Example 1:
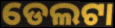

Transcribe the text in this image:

ଡେଲଟା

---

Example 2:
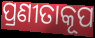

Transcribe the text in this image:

ପ୍ରଣୀତାକୂପ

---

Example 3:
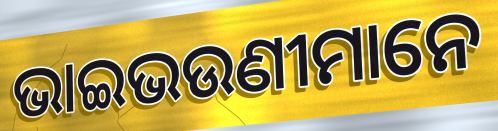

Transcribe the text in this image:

ଭାଇଭଉଣୀମାନେ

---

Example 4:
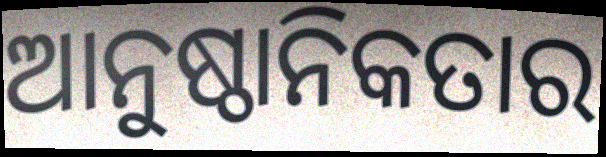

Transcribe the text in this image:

ଆନୁଷ୍ଠାନିକତାର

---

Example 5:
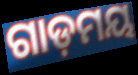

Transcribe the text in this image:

ଗାଡ଼ମୟ